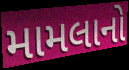
મામલાનો